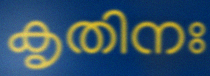
കൃതിനഃ